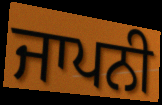
ਜਾਪਨੀ